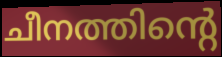
ചീനത്തിന്റെ